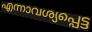
എന്നാവശ്യപ്പെട്ട